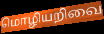
மொழியறிவை